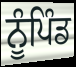
ਨੂੰਪਿੰਡ